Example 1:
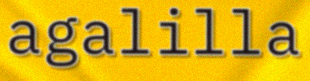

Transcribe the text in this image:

agalilla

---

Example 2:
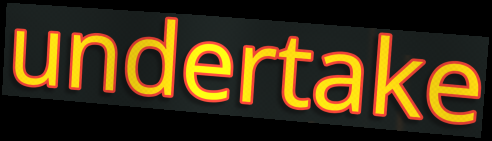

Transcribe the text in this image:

undertake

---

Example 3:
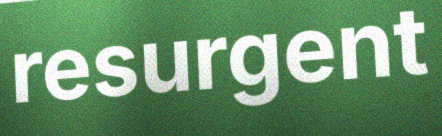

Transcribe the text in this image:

resurgent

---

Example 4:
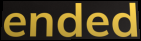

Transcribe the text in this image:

ended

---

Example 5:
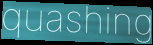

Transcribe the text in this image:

quashing